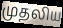
முதலிய